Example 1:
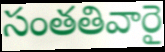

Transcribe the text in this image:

సంతతివారై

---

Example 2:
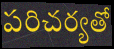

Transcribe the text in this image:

పరిచర్యతో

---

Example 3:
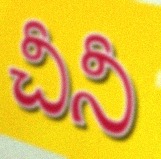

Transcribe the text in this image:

చీనీ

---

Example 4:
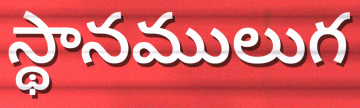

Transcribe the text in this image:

స్థానములుగ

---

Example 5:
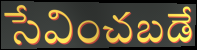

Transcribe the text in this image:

సేవించబడే